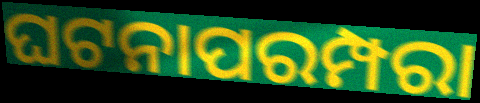
ଘଟନାପରମ୍ପରା